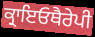
ਕ੍ਰਾਇਓਥੈਰੇਪੀ